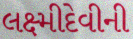
લક્ષ્મીદેવીની